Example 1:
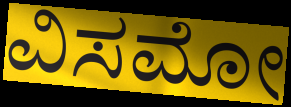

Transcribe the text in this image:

ವಿಸಮೋ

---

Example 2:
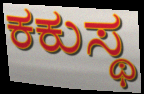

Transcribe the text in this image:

ಕಕುಸ್ಥ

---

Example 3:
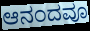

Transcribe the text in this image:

ಆನಂದವೂ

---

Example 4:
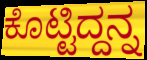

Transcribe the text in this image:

ಕೊಟ್ಟಿದ್ದನ್ನ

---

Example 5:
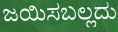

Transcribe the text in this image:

ಜಯಿಸಬಲ್ಲದು